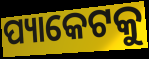
ପ୍ୟାକେଟକୁ